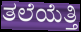
ತಲೆಯೆತ್ತಿ